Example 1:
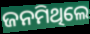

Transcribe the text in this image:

ଜନମିଥିଲେ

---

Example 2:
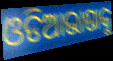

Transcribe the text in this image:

ଓଡିଆଭାଷାକୁ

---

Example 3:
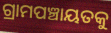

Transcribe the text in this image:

ଗ୍ରାମପଞ୍ଚାୟତକୁ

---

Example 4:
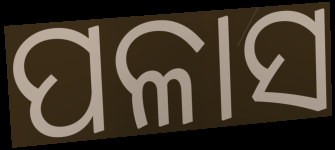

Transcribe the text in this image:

ପଳାସ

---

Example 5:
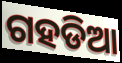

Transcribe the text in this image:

ଗହଡିଆ